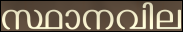
സ്ഥാനവില